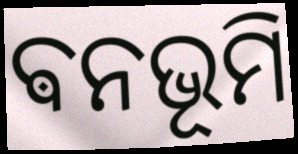
ଵନଭୂମି